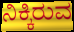
ನಿಕ್ಕಿರುವ